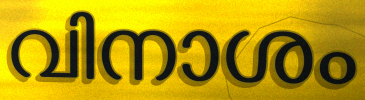
വിനാശം